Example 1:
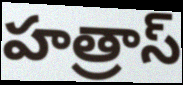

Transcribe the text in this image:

హత్రాస్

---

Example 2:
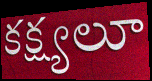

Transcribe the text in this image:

కక్ష్యలూ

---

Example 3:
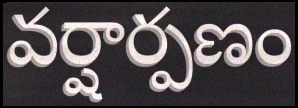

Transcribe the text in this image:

వర్షార్పణం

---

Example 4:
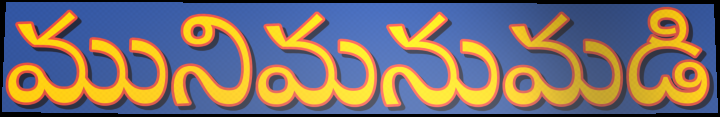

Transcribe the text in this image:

మునిమనుమడి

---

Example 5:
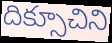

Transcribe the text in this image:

దిక్సూచిని